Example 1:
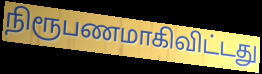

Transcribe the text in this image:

நிரூபணமாகிவிட்டது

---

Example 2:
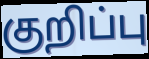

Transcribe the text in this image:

குறிப்பு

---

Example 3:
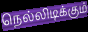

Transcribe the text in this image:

நெல்லிடிக்கும்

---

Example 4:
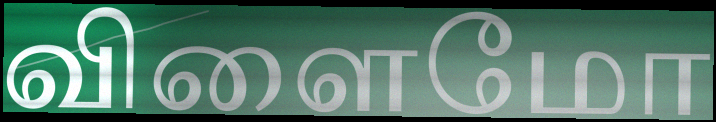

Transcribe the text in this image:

விளைமோ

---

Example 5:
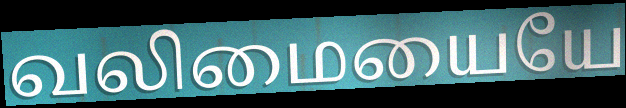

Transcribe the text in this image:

வலிமையையே